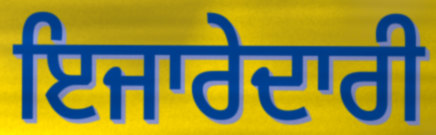
ਇਜਾਰੇਦਾਰੀ